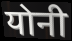
योनी